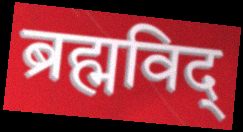
ब्रह्मविद्